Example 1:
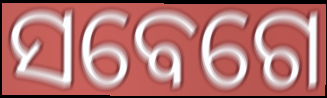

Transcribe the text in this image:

ସବେଗେ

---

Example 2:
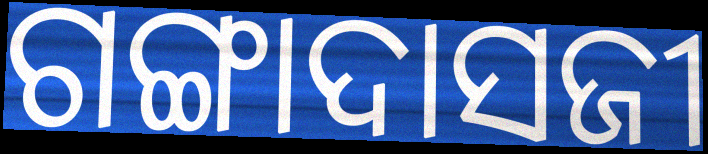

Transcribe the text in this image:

ଗଙ୍ଗାଦାସଜୀ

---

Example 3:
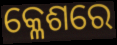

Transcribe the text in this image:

କ୍ଳେଶରେ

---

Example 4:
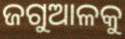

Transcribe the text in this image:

ଜଗୁଆଳକୁ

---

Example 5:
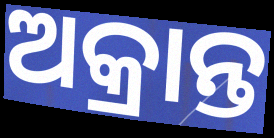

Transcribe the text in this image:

ଅକ୍ରାନ୍ତ